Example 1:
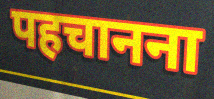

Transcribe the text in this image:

पहचानना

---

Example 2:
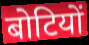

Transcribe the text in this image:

बोटियों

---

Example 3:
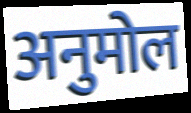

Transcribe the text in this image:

अनुमोल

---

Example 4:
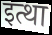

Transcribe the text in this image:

इत्था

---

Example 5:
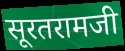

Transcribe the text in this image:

सूरतरामजी